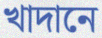
খাদানে